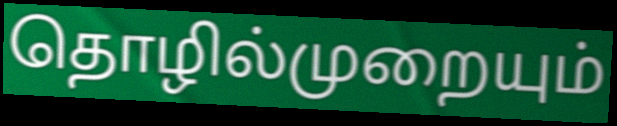
தொழில்முறையும்